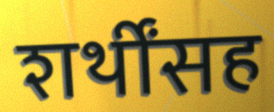
शर्थींसह